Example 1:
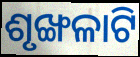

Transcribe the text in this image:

ଶୃଙ୍ଖଳାଟି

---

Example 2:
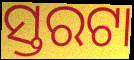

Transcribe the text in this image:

ସ୍ତରଟା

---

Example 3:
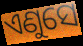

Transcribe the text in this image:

ଏଣୁସେ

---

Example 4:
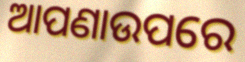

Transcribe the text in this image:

ଆପଣାଉପରେ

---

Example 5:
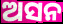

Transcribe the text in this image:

ଅସନ